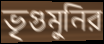
ভৃগুমুনির